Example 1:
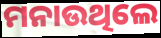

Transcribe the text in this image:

ମନାଉଥିଲେ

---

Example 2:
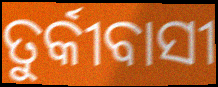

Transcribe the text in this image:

ତୁର୍କୀବାସୀ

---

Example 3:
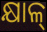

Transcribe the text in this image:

କ୍ଷାଳ୍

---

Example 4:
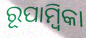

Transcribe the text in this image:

ରୂପାମ୍ୱିକା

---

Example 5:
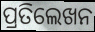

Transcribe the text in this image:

ପ୍ରତିଲେଖନ